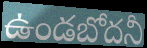
ఉండబోదనీ